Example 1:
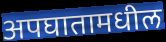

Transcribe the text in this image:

अपघातामधील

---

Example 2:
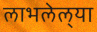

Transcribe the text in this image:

लाभलेल्या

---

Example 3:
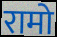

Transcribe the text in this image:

रामो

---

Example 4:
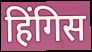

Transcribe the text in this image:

हिंगिस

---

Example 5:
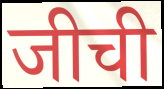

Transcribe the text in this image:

जीची